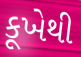
કૂખેથી